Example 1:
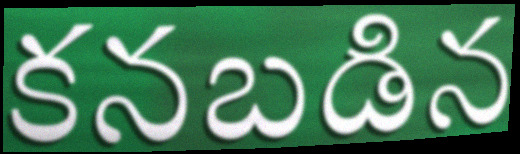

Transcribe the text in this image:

కనబడిన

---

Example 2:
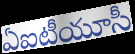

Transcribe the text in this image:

ఏఐటీయూసీ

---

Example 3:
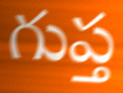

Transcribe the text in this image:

గుప్త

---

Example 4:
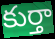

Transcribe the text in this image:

కుర్తా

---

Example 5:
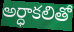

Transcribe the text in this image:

అర్ధాకలితో